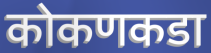
कोकणकडा